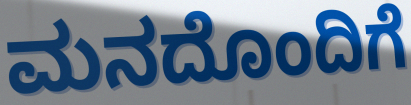
ಮನದೊಂದಿಗೆ